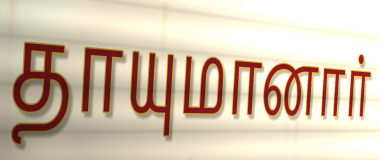
தாயுமானார்